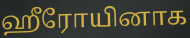
ஹீரோயினாக